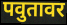
पवुतावर